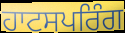
ਹਾਟਸਪਰਿੰਗ